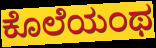
ಕೊಲೆಯಂಥ